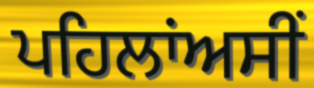
ਪਹਿਲਾਂਅਸੀਂ